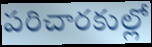
పరిచారకుల్లో